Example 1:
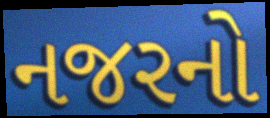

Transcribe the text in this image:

નજરનો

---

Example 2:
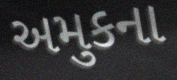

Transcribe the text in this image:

અમુકના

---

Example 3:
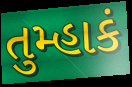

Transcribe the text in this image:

તુમ્હાકં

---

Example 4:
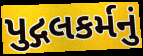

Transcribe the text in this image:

પુદ્ગલકર્મનું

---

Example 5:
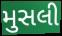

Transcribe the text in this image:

મુસલી